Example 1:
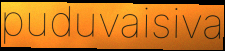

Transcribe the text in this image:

puduvaisiva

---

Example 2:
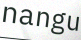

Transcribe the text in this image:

nangu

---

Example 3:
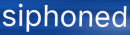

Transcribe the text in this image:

siphoned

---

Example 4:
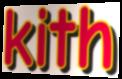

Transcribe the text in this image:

kith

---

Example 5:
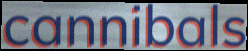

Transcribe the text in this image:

cannibals